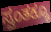
ಸ್ವಂತಕ್ಕೂ